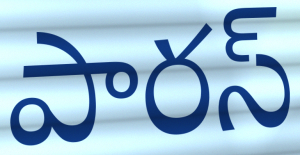
పారస్